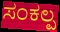
ಸಂಕಲ್ಪ